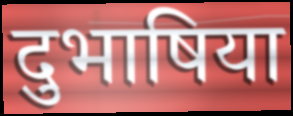
दुभाषिया